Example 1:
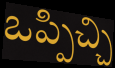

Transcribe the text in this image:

ఒప్పిచ్చి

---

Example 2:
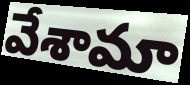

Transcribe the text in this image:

వేశామా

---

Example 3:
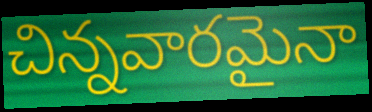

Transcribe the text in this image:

చిన్నవారమైనా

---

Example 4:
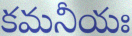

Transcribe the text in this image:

కమనీయః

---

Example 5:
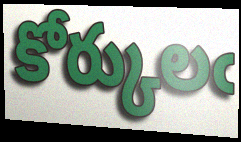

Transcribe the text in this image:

కోర్కులఁ